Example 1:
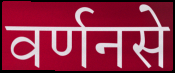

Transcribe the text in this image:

वर्णनसे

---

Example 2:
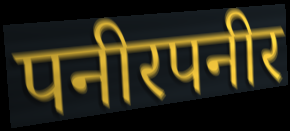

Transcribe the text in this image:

पनीरपनीर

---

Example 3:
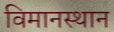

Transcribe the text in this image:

विमानस्थान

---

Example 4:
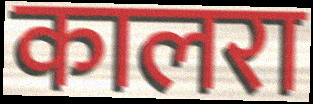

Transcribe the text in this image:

कालरा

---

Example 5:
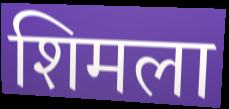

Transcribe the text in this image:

शिमला